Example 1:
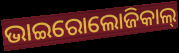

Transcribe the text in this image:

ଭାଇରୋଲୋଜିକାଲ୍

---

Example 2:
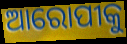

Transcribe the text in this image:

ଆରୋପୀକୁ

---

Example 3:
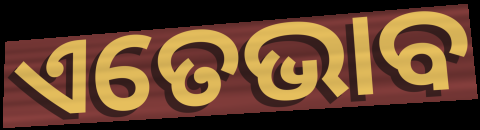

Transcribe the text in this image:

ଏତେଭାବ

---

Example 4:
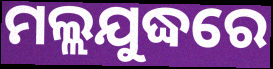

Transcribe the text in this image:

ମଲ୍ଲଯୁଦ୍ଧରେ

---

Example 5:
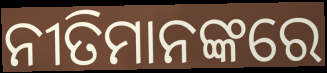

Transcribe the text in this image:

ନୀତିମାନଙ୍କରେ